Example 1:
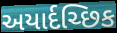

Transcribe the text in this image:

અયાર્દચ્છિક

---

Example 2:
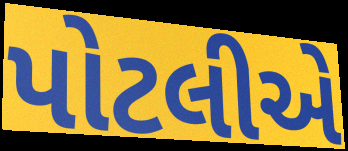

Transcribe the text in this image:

પોટલીએ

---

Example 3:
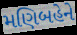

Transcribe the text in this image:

મણિબહેને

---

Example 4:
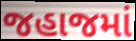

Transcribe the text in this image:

જહાજમાં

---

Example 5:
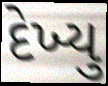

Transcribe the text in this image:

દેખ્યુ